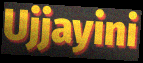
Ujjayini